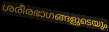
ശരീരഭാഗങ്ങളുടെയും